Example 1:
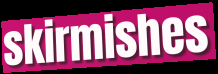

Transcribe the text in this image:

skirmishes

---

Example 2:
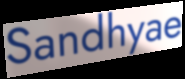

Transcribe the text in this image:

Sandhyae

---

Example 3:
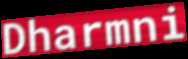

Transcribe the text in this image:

Dharmni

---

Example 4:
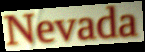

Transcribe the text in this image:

Nevada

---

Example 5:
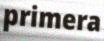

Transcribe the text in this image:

primera